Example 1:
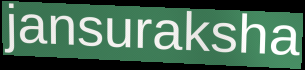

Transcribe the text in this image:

jansuraksha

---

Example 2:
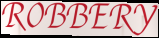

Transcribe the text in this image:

ROBBERY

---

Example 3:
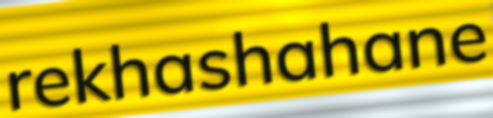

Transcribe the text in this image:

rekhashahane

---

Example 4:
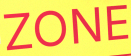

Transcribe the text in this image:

ZONE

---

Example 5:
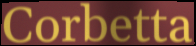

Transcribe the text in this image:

Corbetta